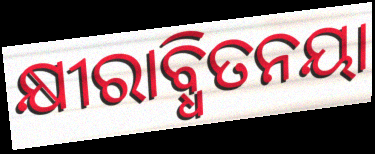
କ୍ଷୀରାବ୍ଧିତନୟା